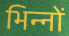
भिन्नों